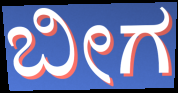
ಬೀಗ